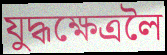
যুদ্ধক্ষেত্ৰলৈ